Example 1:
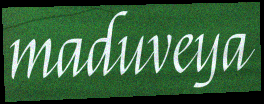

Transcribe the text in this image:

maduveya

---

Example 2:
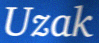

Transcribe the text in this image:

Uzak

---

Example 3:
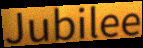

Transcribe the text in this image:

Jubilee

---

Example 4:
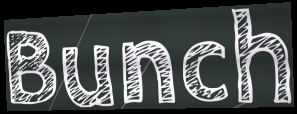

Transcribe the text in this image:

Bunch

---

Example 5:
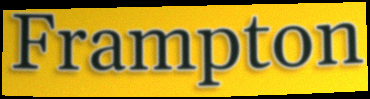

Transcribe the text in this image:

Frampton